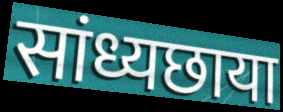
सांध्यछाया